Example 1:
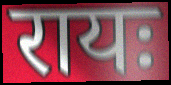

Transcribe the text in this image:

रायः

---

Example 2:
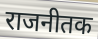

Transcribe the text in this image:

राजनीतक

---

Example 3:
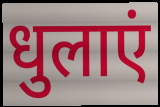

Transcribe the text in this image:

धुलाएं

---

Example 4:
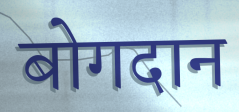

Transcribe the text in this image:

बोगदान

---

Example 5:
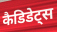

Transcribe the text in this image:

कैडिडेट्स